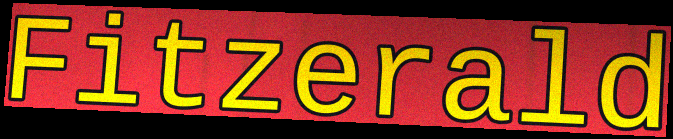
Fitzerald